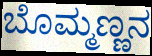
ಬೊಮ್ಮಣ್ಣನ